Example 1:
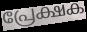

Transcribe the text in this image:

പ്രേക്ഷക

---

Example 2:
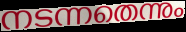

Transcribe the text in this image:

നടന്നതെന്നും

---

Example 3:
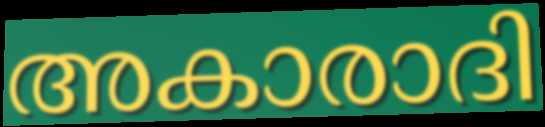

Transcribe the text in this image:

അകാരാദി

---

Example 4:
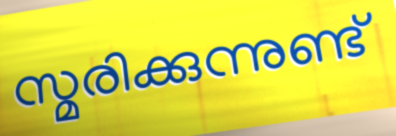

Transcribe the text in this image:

സ്മരിക്കുന്നുണ്ട്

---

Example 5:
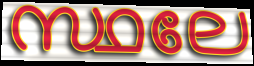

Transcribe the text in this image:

സ്ഥലേ